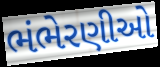
ભંભેરણીઓ